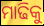
ମାଢିକୁ